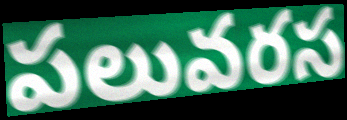
పలువరస